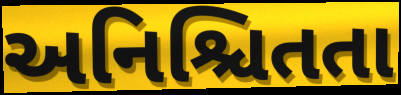
અનિશ્ચિતતા